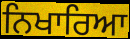
ਨਿਖਾਰਿਆ